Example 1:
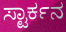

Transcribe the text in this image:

ಸ್ಟಾರ್ಕನ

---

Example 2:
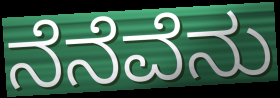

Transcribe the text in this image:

ನೆನೆವೆನು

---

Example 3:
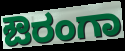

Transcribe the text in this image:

ಔರಂಗಾ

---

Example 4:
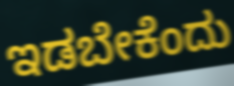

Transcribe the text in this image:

ಇಡಬೇಕೆಂದು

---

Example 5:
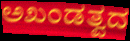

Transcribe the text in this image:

ಅಖಂಡತ್ವದ